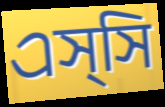
এস্‌সি